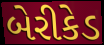
બેરીકેડ